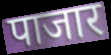
पाजार